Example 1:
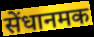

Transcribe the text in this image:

सेंधानमक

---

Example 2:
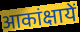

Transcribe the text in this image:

आकांक्षायें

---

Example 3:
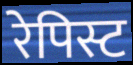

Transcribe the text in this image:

रेपिस्ट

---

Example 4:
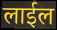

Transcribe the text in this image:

लाईल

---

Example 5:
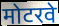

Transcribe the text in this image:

मोटरवे